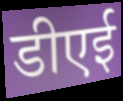
डीएई